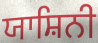
ਯਾਸ਼ਿਨੀ